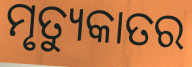
ମୃତ୍ୟୁକାତର